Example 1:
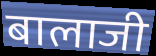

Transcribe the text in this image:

बालाजी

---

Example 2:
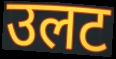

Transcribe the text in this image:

उलट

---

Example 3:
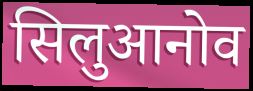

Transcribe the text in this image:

सिलुआनोव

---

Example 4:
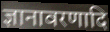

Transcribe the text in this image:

ज्ञानावरणादि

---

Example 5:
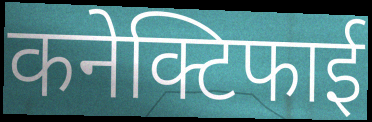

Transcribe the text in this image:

कनेक्टिफाई